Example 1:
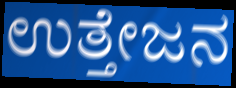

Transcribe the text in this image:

ಉತ್ತೇಜನ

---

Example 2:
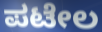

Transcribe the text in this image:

ಪಟೇಲ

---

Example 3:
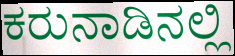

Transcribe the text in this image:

ಕರುನಾಡಿನಲ್ಲಿ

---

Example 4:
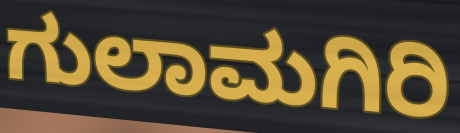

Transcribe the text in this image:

ಗುಲಾಮಗಿರಿ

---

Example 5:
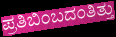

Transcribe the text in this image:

ಪ್ರತಿಬಿಂಬದಂತಿತ್ತು